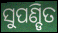
ସୁପଣ୍ଡିତ